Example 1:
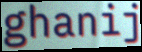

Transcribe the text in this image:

ghanij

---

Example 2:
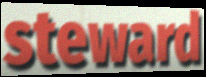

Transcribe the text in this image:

steward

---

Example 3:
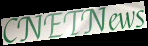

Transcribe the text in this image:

CNETNews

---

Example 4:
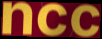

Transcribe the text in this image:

ncc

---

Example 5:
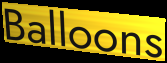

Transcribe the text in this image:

Balloons